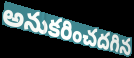
అనుకరించదగిన